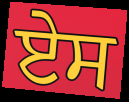
ਏਸ